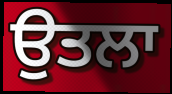
ਉਤਲਾ